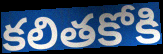
కలితకోకి